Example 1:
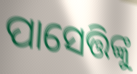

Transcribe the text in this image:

ପାସେତ୍ତିଙ୍କୁ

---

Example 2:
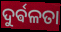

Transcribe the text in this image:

ଦୁର୍ଵଳତା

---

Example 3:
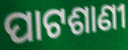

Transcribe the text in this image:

ପାଟଶାଣୀ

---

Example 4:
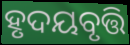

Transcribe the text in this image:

ହୃଦୟବୃତ୍ତି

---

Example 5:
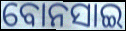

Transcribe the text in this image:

ବୋନସାଇ